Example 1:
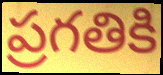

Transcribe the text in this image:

ప్రగతికి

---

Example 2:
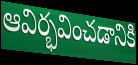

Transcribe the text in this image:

ఆవిర్భవించడానికి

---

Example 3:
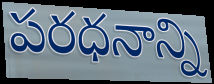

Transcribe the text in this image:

పరధనాన్ని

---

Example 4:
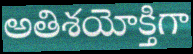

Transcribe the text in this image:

అతిశయోక్తిగా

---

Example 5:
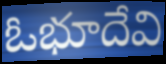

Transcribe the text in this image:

ఓభూదేవి